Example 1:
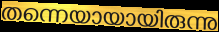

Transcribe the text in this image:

തന്നെയായായിരുന്നു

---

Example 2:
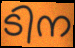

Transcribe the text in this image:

ടിന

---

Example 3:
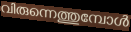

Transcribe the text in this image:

വിരുന്നെത്തുമ്പോൾ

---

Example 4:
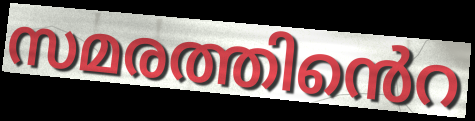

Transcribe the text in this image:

സമരത്തിൻെറ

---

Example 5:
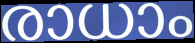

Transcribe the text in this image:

രാധാം